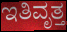
ಇತಿವೃತ್ತ